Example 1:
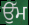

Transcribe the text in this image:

ਉੱਮ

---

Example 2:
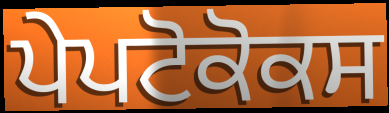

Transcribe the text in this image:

ਪੇਪਟੋਕੋਕਸ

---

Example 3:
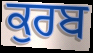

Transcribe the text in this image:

ਕੁਰਬ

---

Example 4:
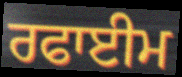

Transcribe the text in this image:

ਰਫਾਈਮ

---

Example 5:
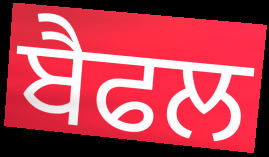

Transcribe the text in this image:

ਬੈਫਲ